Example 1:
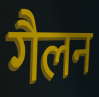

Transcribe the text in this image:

गैलन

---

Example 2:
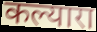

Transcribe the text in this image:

कल्यारा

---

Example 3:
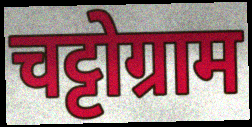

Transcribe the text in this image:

चट्टोग्राम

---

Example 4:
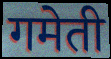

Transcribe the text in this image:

गमेती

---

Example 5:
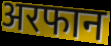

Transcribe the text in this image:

अरफान